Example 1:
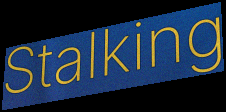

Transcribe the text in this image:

Stalking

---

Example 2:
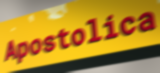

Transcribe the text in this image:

Apostolica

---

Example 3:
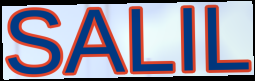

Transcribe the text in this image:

SALIL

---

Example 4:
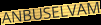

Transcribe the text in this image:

ANBUSELVAM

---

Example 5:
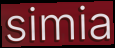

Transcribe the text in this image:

simia